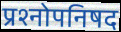
प्रश्नोपनिषद